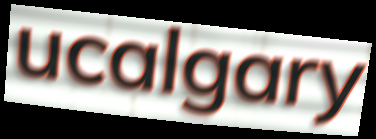
ucalgary